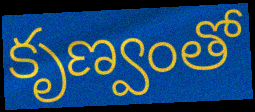
కృణ్వంతో